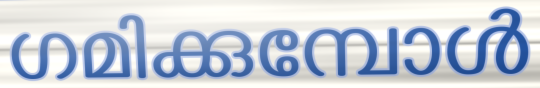
ഗമിക്കുമ്പോൾ